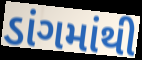
ડાંગમાંથી